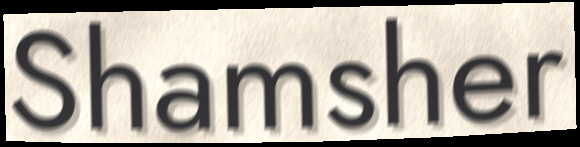
Shamsher